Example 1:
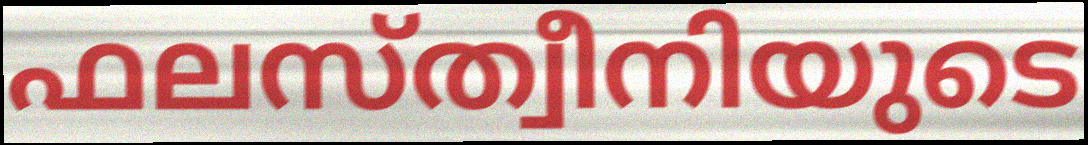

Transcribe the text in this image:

ഫലസ്ത്വീനിയുടെ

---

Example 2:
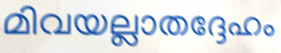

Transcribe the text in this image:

മിവയല്ലാതദ്ദേഹം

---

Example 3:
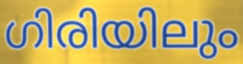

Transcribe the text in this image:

ഗിരിയിലും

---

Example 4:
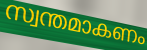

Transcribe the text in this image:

സ്വന്തമാകണം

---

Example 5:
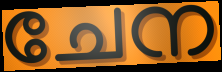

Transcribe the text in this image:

ചേന